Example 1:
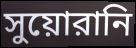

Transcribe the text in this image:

সুয়োরানি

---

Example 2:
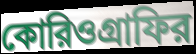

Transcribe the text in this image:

কোরিওগ্রাফির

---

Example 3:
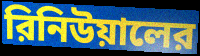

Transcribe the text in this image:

রিনিউয়ালের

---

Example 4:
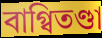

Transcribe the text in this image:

বাগ্বিতণ্ডা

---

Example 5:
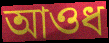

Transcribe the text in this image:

আওধ